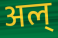
अल्